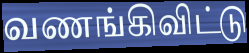
வணங்கிவிட்டு